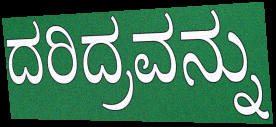
ದರಿದ್ರವನ್ನು